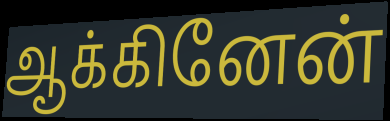
ஆக்கினேன்